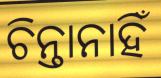
ଚିନ୍ତାନାହିଁ